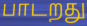
பாடறது